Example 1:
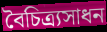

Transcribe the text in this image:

বৈচিত্র্যসাধন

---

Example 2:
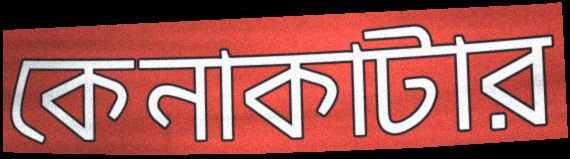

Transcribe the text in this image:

কেনাকাটার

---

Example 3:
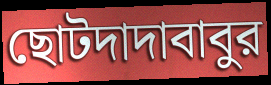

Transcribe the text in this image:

ছোটদাদাবাবুর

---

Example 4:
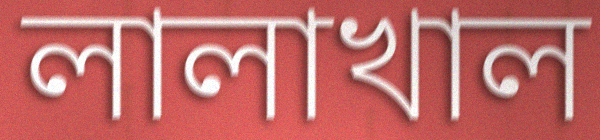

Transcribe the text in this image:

লালাখাল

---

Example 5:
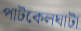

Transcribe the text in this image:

পাটকেলঘাটা